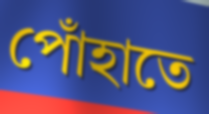
পোঁহাতে